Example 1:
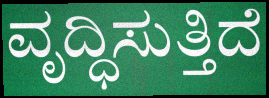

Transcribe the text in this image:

ವೃದ್ಧಿಸುತ್ತಿದೆ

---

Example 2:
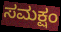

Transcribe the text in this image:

ಸಮಕ್ಷಂ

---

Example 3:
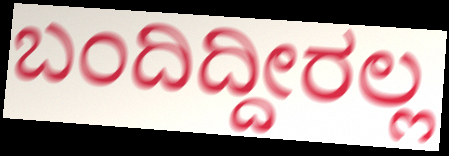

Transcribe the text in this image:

ಬಂದಿದ್ದೀರಲ್ಲ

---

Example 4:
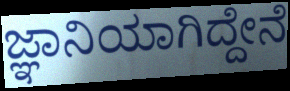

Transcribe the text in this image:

ಜ್ಞಾನಿಯಾಗಿದ್ದೇನೆ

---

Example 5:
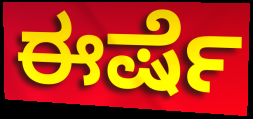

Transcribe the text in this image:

ಈರ್ಷೆ